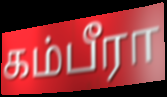
கம்பீரா